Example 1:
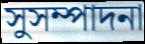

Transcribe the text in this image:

সুসম্পাদনা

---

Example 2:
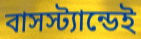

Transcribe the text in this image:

বাসস্ট্যান্ডেই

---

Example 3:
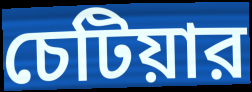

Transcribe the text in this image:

চেটিয়ার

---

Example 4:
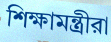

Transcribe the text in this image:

শিক্ষামন্ত্রীরা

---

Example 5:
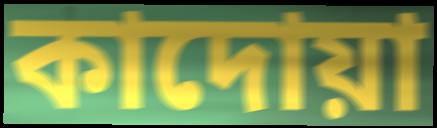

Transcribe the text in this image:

কাদোয়া